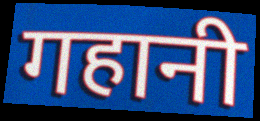
गहानी